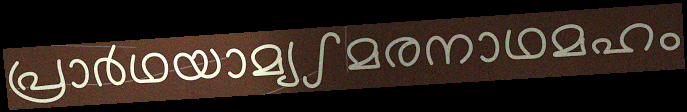
പ്രാർഥയാമ്യഽമരനാഥമഹം